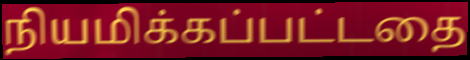
நியமிக்கப்பட்டதை